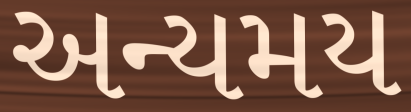
અન્યમય